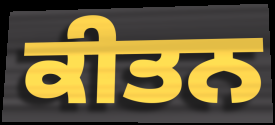
ਕੀਤਨ